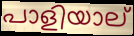
പാളിയാല്